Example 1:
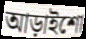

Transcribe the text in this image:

আড়াইশো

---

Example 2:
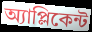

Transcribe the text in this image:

অ্যাপ্লিকেন্ট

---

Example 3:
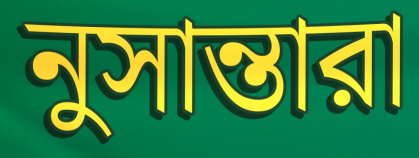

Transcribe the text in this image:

নুসান্তারা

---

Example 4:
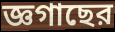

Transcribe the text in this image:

জ্ঞগাছের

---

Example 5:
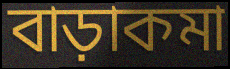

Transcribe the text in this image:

বাড়াকমা